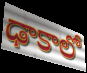
ఢాకాలో